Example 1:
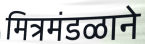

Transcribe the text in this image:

मित्रमंडळाने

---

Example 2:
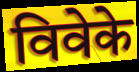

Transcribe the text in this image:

विवेके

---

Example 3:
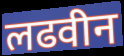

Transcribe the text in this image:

लढवीन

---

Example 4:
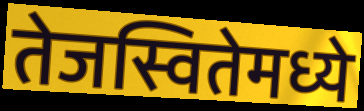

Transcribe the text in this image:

तेजस्वितेमध्ये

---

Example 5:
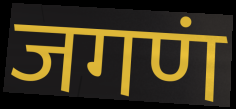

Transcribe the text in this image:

जगणं